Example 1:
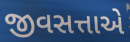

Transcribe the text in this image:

જીવસત્તાએ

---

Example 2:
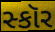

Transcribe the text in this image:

સ્કૉર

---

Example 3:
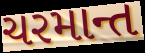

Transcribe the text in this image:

ચરમાન્ત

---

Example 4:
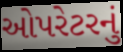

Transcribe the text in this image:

ઓપરેટરનું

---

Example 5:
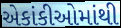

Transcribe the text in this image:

એકાંકીઓમાંથી